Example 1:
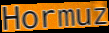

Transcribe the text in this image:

Hormuz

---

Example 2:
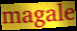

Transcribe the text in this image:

magale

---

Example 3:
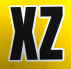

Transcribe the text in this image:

XZ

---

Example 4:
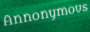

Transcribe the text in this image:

Annonymous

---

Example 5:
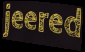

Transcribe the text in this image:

jeered